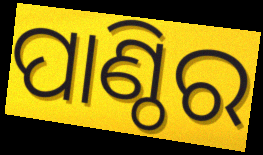
ପାଣ୍ଠିର